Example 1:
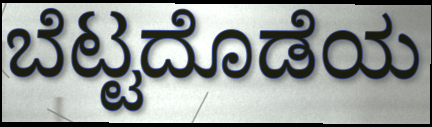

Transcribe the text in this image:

ಬೆಟ್ಟದೊಡೆಯ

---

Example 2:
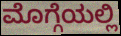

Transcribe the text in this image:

ಮೊಗ್ಗೆಯಲ್ಲಿ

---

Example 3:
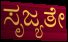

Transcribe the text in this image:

ಸೃಜ್ಯತೇ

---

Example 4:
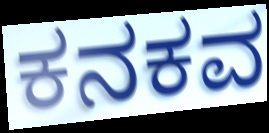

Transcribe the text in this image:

ಕನಕವ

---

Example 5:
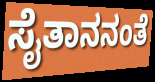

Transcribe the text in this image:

ಸೈತಾನನಂತೆ